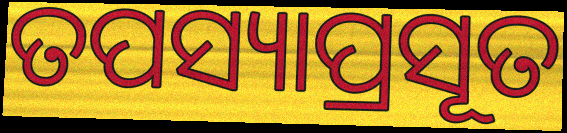
ତପସ୍ୟାପ୍ରସୂତ